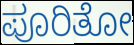
ಪೂರಿತೋ